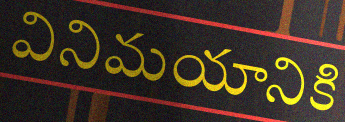
వినిమయానికి